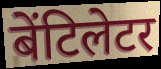
बेंटिलेटर